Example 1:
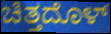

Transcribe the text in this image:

ಚಿತ್ತದೊಳ್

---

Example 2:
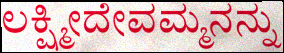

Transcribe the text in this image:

ಲಕ್ಷ್ಮೀದೇವಮ್ಮನನ್ನು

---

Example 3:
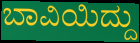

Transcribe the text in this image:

ಬಾವಿಯಿದ್ದು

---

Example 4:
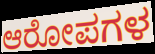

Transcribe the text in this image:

ಆರೋಪಗಳ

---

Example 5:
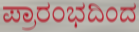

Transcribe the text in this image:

ಪ್ರಾರಂಭದಿಂದ